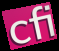
cfi